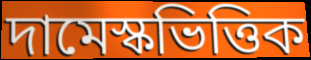
দামেস্কভিত্তিক